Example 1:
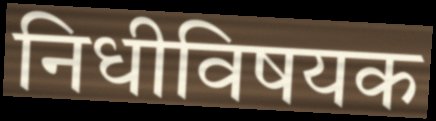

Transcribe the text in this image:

निधीविषयक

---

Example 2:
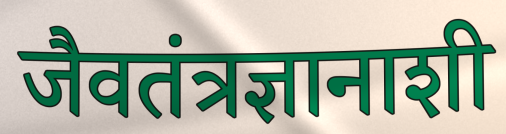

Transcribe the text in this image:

जैवतंत्रज्ञानाशी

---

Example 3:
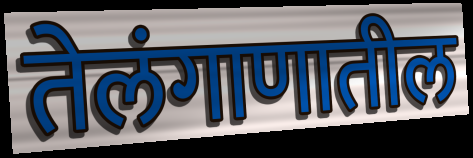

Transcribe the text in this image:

तेलंगाणातील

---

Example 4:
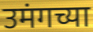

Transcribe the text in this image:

उमंगच्या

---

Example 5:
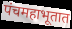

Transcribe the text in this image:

पंचमहाभूतात